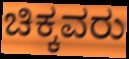
ಚಿಕ್ಕವರು